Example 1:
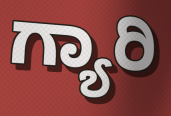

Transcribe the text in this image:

ಗ್ಯಾರಿ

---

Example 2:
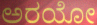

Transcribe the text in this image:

ಅರಯೋ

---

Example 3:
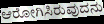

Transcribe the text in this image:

ಆರೋಗಿಸಿರುವುದನು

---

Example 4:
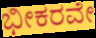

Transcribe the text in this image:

ಭೀಕರವೇ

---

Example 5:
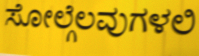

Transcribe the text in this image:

ಸೋಲ್ಗೆಲವುಗಳಲಿ